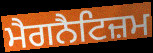
ਮੈਗਨੈਟਿਜ਼ਮ